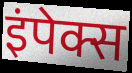
इंपेक्स